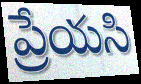
ప్రేయసి